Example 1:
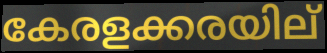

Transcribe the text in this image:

കേരളക്കരയില്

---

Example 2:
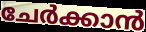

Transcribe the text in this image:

ചേർക്കാൻ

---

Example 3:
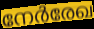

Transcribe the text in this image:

നേർരേഖ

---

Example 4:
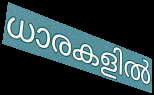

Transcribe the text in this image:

ധാരകളിൽ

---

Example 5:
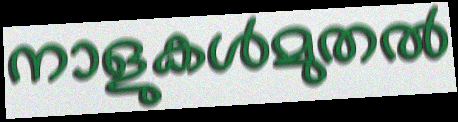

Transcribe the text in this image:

നാളുകൾമുതൽ